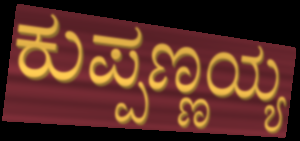
ಕುಪ್ಪಣ್ಣಯ್ಯ